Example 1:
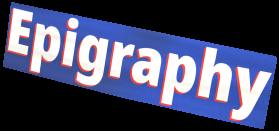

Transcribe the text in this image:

Epigraphy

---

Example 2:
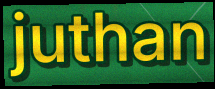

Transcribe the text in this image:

juthan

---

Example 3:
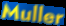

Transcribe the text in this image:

Muller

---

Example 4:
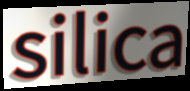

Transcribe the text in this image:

silica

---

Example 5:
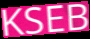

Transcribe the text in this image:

KSEB